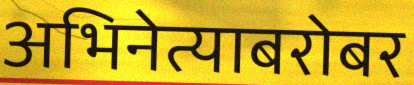
अभिनेत्याबरोबर